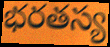
భరతస్య